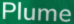
Plume